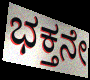
ಭಕ್ತನೇ